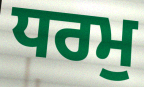
ਧਰਮੁ